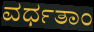
ವರ್ಧತಾಂ